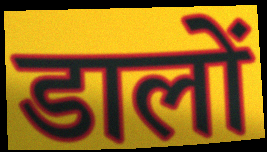
डालों